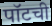
पॉटची